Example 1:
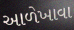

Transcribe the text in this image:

આળેખાવા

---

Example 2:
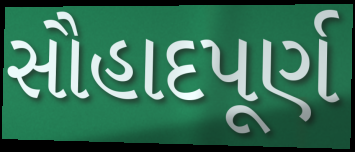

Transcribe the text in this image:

સૌહાદપૂર્ણ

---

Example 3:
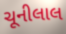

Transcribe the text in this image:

ચૂનીલાલ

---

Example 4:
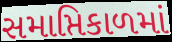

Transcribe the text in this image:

સમાપ્તિકાળમાં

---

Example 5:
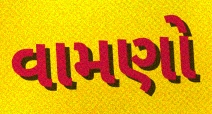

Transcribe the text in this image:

વામણો